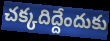
చక్కదిద్దేందుకు